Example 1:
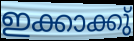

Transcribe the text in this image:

ഇക്കാക്കു്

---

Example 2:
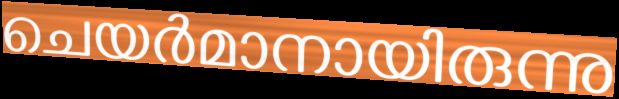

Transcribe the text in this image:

ചെയർമാനായിരുന്നു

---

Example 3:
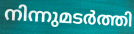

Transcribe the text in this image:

നിന്നുമടർത്തി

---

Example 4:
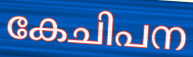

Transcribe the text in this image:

കേചിപന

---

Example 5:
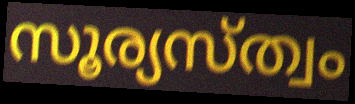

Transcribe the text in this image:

സൂര്യസ്ത്വം